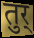
तुर्